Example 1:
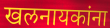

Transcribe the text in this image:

खलनायकांना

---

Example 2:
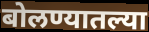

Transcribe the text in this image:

बोलण्यातल्या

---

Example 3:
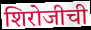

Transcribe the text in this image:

शिरोजीची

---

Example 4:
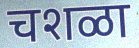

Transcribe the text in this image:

चशळा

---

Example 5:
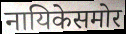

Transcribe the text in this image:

नायिकेसमोर